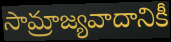
సామ్రాజ్యవాదానికీ